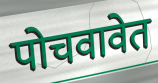
पोचवावेत